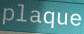
plaque